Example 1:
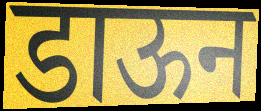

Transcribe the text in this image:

डाऊन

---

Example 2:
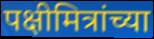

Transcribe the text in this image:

पक्षीमित्रांच्या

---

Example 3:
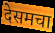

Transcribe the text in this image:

देसमचा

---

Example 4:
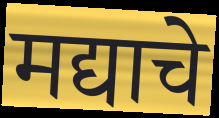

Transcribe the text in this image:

मद्याचे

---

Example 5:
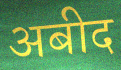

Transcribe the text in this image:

अबीद